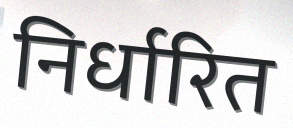
निर्धारित